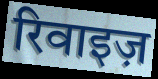
रिवाइज़